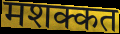
मशक्‍कत